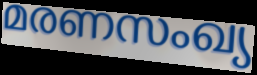
മരണസംഖ്യ